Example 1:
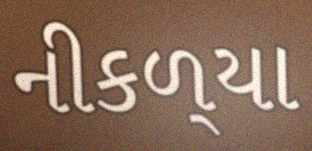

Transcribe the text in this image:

નીકળ્‌યા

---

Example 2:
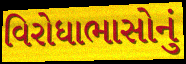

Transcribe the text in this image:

વિરોધાભાસોનું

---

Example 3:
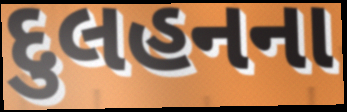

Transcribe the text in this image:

દુલહનના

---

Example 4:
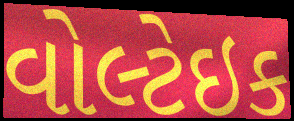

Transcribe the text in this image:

વોલ્ટેઇક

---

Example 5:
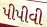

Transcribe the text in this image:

પીપીવી